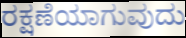
ರಕ್ಷಣೆಯಾಗುವುದು